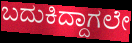
ಬದುಕಿದ್ದಾಗಲೇ